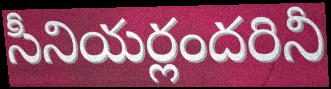
సీనియర్లందరినీ